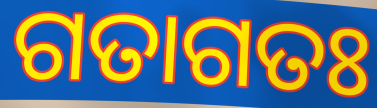
ଗତାଗତଃ